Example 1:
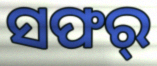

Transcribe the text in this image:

ସଫର୍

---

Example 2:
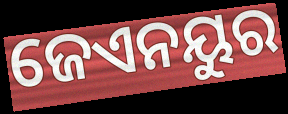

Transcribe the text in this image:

ଜେଏନୟୁର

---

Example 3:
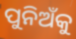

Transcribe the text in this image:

ପୁନିଅଁକୁ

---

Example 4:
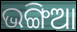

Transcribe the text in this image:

ଭଙ୍ଗିଆ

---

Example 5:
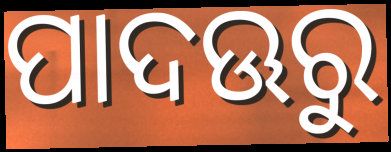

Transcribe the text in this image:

ପାଦଊରୁ